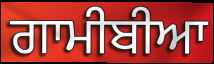
ਗਾਮੀਬੀਆ